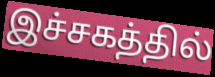
இச்சகத்தில்